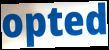
opted